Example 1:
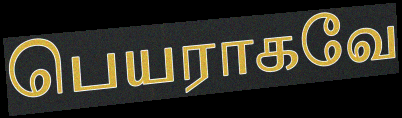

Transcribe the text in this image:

பெயராகவே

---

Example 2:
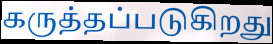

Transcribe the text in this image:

கருத்தப்படுகிறது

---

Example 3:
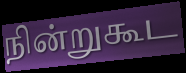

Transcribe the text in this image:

நின்றுகூட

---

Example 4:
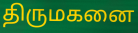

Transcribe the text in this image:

திருமகனை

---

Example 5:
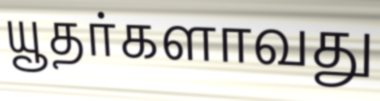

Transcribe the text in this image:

யூதர்களாவது